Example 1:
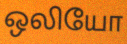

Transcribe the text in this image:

ஒலியோ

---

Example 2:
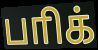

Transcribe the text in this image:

பரிக்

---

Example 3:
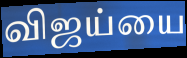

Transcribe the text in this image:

விஜய்யை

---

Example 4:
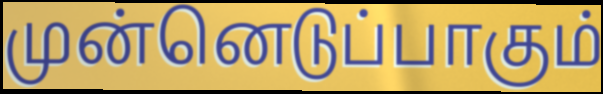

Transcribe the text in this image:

முன்னெடுப்பாகும்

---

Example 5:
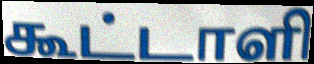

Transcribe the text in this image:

கூட்டாளி